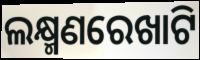
ଲକ୍ଷ୍ମଣରେଖାଟି